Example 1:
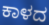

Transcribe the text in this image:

ಕಾಳದ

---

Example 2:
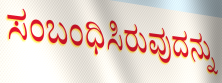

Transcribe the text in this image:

ಸಂಬಂಧಿಸಿರುವುದನ್ನು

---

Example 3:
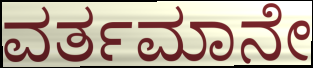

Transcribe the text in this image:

ವರ್ತಮಾನೇ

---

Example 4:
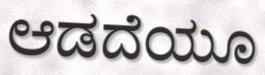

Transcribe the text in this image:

ಆಡದೆಯೂ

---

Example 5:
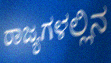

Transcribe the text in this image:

ರಾಜ್ಯಗಳಲ್ಲಿನ